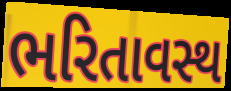
ભરિતાવસ્થ